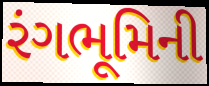
રંગભૂમિની